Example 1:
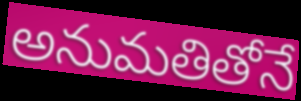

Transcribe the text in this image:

అనుమతితోనే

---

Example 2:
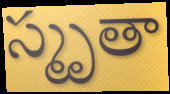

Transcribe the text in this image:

స్మృతా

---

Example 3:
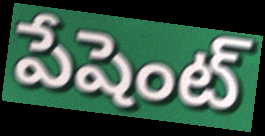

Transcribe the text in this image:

పేషెంట్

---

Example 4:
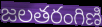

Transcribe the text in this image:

జలతరంగిణి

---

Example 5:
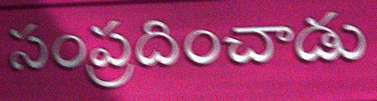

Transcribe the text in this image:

సంప్రదించాడు